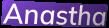
Anastha